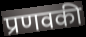
प्रणवकी